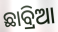
ଛାବ୍ରିଆ